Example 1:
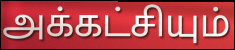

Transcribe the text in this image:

அக்கட்சியும்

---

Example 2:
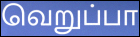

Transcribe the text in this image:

வெறுப்பா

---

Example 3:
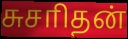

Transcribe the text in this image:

சுசரிதன்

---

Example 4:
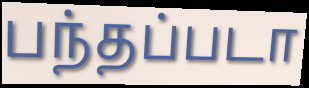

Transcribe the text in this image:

பந்தப்படா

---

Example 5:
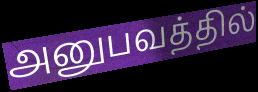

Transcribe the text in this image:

அனுபவத்தில்